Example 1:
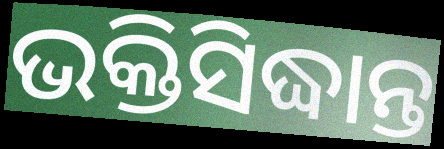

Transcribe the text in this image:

ଭକ୍ତିସିଦ୍ଧାନ୍ତ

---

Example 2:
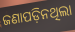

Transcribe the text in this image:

ଜଣାପଡ଼ିନଥିଲା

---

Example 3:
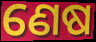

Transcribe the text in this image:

ଣେଷ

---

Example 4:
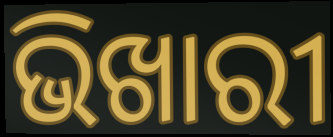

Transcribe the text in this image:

ଭିଖାରୀ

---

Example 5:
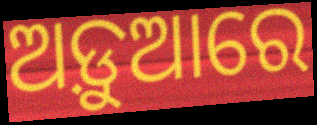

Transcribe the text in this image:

ଅଡ଼ୁଆରେ